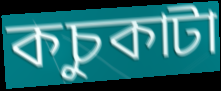
কচুকাটা